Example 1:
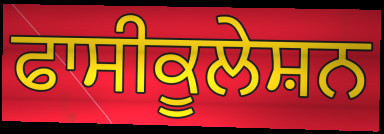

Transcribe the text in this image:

ਫਾਸੀਕੂਲੇਸ਼ਨ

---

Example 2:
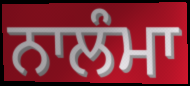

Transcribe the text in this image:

ਨਾਲੰਮਾ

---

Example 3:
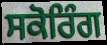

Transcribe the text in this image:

ਸਕੋਰਿੰਗ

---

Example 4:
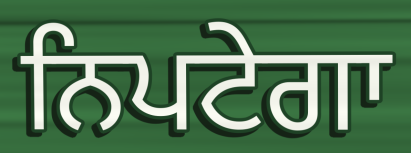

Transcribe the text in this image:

ਨਿਪਟੇਗਾ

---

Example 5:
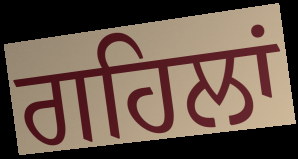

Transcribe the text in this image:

ਗਹਿਲਾਂ